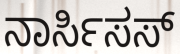
ನಾರ್ಸಿಸಸ್